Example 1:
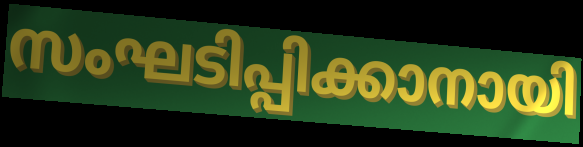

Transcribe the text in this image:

സംഘടിപ്പിക്കാനായി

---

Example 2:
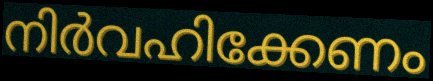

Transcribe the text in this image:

നിർവഹിക്കേണം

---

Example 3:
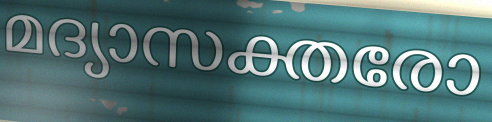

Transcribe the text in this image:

മദ്യാസക്തരോ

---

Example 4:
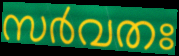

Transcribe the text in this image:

സർവതഃ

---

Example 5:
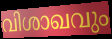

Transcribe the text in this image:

വിശാഖവും